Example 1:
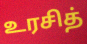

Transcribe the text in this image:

உரசித்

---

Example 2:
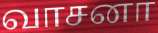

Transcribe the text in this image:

வாசனா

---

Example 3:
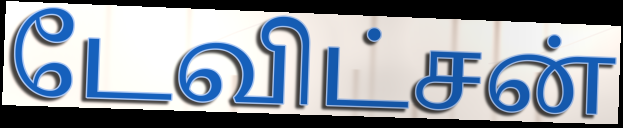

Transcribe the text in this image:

டேவிட்சன்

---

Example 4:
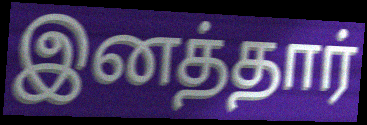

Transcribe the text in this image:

இனத்தார்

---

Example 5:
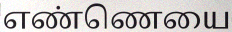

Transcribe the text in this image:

எண்ணெயை